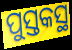
ପୁସ୍ତକସ୍ଥ